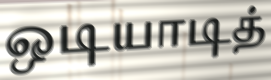
ஒடியாடித்